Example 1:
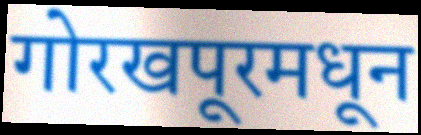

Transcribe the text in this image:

गोरखपूरमधून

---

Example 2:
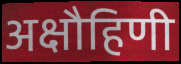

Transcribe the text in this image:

अक्षौहिणी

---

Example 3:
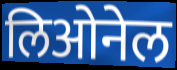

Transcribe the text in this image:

लिओनेल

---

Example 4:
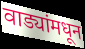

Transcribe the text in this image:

वाड्यांमधून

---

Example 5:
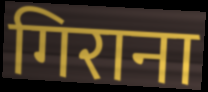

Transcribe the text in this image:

गिराना